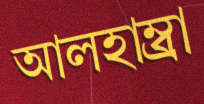
আলহাম্ব্রা